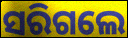
ସରିଗଲେ